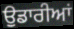
ਉੁਡਾਰੀਆਂ